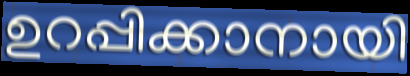
ഉറപ്പിക്കാനായി